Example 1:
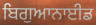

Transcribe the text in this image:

ਬਿਗੁਆਨਾਈਡ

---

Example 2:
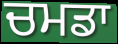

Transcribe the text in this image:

ਚਮਡਾ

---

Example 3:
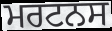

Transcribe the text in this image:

ਮਰਟਨਸ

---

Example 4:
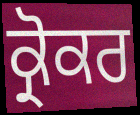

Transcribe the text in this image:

ਕ੍ਰੋਕਰ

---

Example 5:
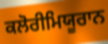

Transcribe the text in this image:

ਕਲੋਰੀਮਿਯੂਰਾਨ